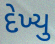
દેખ્યુ